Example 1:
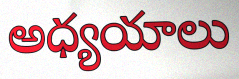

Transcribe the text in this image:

అధ్యయాలు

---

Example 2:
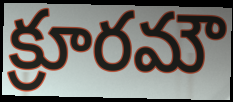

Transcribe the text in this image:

క్రూరమౌ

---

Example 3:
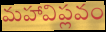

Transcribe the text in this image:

మహావిప్లవం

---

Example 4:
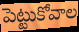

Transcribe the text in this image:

పెట్టుకోవాల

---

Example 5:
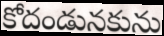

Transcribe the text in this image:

కోదండునకును